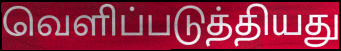
வெளிப்படுத்தியது